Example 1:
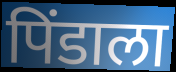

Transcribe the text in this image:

पिंडाला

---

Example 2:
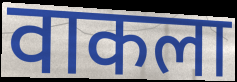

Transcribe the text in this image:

वाकला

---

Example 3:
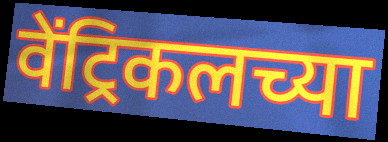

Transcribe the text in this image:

वेंट्रिकलच्या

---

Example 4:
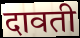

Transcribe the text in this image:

दावती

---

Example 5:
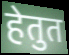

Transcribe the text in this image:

हेतुत